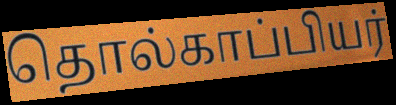
தொல்காப்பியர்